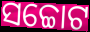
ସଚ୍ଚୋଟ